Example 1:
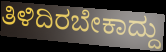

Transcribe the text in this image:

ತಿಳಿದಿರಬೇಕಾದ್ದು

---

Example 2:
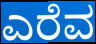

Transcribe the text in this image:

ಎರೆವ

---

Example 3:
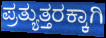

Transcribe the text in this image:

ಪ್ರತ್ಯುತ್ತರಕ್ಕಾಗಿ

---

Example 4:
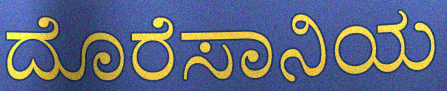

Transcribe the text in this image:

ದೊರೆಸಾನಿಯ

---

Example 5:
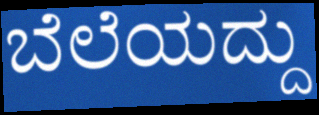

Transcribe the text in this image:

ಬೆಲೆಯದ್ದು